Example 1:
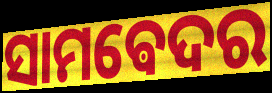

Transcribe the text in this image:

ସାମଵେଦର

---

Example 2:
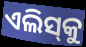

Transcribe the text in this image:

ଏଲିସ୍‌କୁ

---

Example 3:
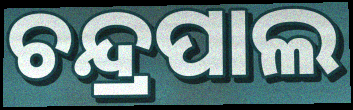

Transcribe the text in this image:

ଚନ୍ଦ୍ରପାଲ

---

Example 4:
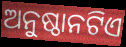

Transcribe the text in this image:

ଅନୁଷ୍ଠାନଟିଏ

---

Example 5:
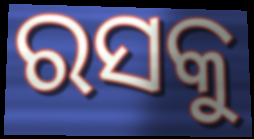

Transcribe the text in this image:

ରସକୁ